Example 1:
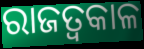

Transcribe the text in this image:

ରାଜତ୍ଵକାଳ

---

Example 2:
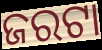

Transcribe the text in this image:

ଜରଟା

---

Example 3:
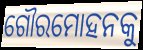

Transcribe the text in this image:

ଗୌରମୋହନକୁ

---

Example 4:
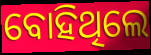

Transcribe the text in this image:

ବୋହିଥିଲେ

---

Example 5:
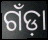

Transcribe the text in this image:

ଗଁଡ଼ା